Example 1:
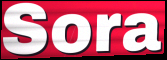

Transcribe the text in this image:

Sora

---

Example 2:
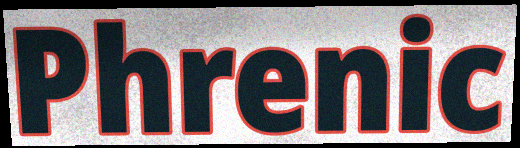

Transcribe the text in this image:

Phrenic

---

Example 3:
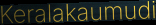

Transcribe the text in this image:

Keralakaumudi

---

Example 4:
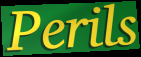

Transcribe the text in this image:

Perils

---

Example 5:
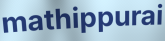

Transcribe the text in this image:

mathippurai